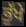
ਭੁੱਖੇ